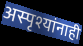
अस्पृश्यांनाही